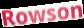
Rowson